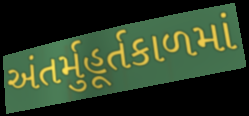
અંતર્મુહૂર્તકાળમાં